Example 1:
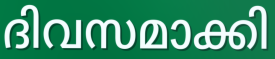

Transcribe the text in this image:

ദിവസമാക്കി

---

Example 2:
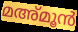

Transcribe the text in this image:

മഅ്മൂൻ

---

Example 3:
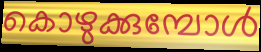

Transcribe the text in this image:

കൊഴുക്കുമ്പോൾ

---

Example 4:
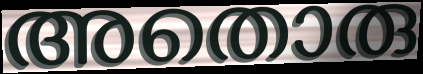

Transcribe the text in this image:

അതൊരു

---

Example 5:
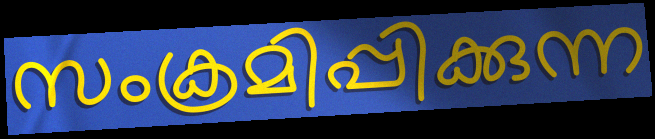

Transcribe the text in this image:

സംക്രമിപ്പിക്കുന്ന